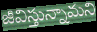
జీవిస్తున్నామని